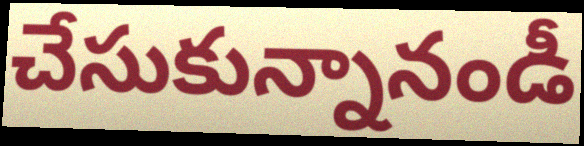
చేసుకున్నానండీ